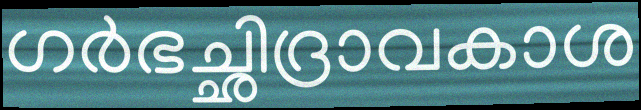
ഗർഭച്ഛിദ്രാവകാശ